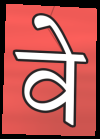
वे